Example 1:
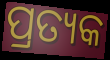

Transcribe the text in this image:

ପ୍ରତ୍ୟକ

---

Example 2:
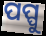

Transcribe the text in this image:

ପପ୍ପୁ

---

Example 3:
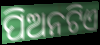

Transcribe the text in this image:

ପିଅନଟିଏ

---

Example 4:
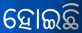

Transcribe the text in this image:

ହୋଇଛି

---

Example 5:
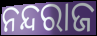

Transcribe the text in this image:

ନନ୍ଦରାଜ